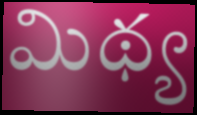
మిథ్య